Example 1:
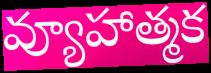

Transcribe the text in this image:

వ్యూహాత్మక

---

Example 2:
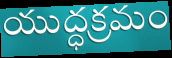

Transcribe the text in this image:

యుద్ధక్రమం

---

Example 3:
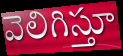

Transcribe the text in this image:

వెలిగిస్తూ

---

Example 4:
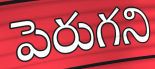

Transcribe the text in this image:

పెరుగని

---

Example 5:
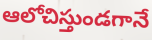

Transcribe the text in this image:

ఆలోచిస్తుండగానే